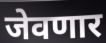
जेवणार